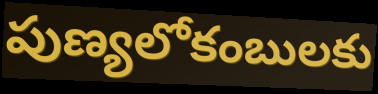
పుణ్యలోకంబులకు